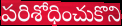
పరిశోధించుకొని